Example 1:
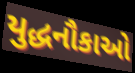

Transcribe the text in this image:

યુદ્ધનૌકાઓ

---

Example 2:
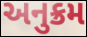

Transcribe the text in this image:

અનુક્રમ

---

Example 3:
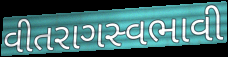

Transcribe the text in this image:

વીતરાગસ્વભાવી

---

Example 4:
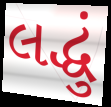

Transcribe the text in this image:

લદ્ધું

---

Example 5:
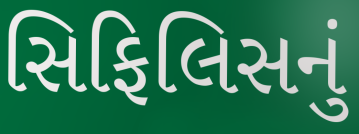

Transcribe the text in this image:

સિફિલિસનું